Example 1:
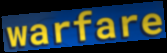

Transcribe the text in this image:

warfare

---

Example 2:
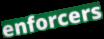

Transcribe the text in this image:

enforcers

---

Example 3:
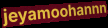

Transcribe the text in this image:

jeyamoohannn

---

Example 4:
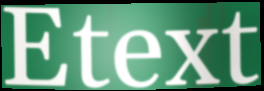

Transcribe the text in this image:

Etext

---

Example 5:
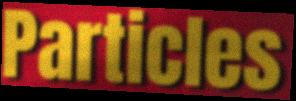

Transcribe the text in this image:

Particles